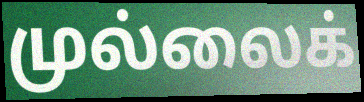
முல்லைக்